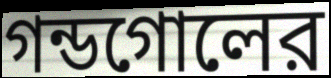
গন্ডগোলের